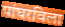
पांघरविला